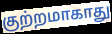
குற்றமாகாது